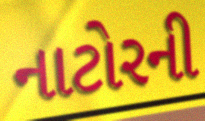
નાટોરની